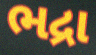
ભદ્રા